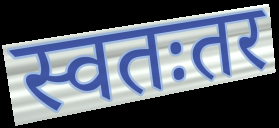
स्वतःतर